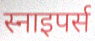
स्नाइपर्स